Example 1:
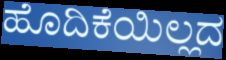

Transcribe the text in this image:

ಹೊದಿಕೆಯಿಲ್ಲದ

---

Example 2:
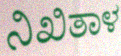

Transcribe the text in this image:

ನಿಖಿತಾಳ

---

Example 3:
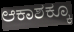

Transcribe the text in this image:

ಆಕಾಶಕ್ಕೂ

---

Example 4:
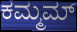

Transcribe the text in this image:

ಕಮ್ಮಮ್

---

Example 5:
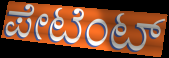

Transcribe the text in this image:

ಪೇಟೆಂಟ್